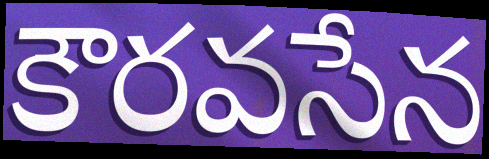
కౌరవసేన